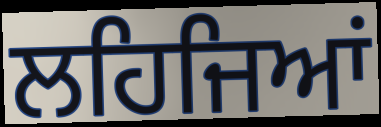
ਲਹਿਜਿਆਂ